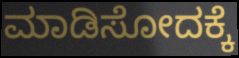
ಮಾಡಿಸೋದಕ್ಕೆ